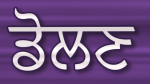
ਡੋਲਣ